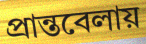
প্রান্তবেলায়